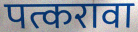
पत्करावा